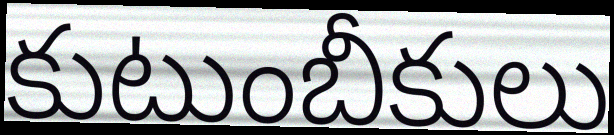
కుటుంబీకులు